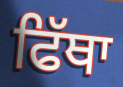
ਫਿੱਥਾ